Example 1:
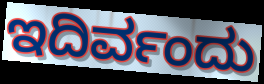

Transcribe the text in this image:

ಇದಿರ್ವಂದು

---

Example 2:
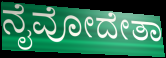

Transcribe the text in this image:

ನೈವೋದೇತಾ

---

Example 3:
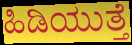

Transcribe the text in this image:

ಹಿಡಿಯುತ್ತೆ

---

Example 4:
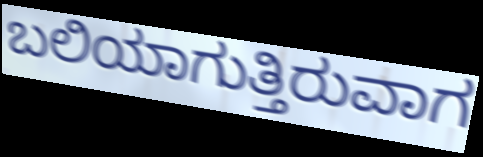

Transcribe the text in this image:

ಬಲಿಯಾಗುತ್ತಿರುವಾಗ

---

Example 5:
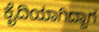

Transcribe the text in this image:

ಕೈದಿಯಾಗಿದ್ದಾಗ